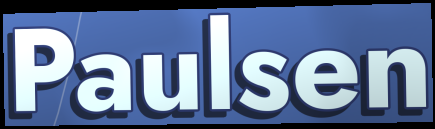
Paulsen